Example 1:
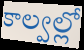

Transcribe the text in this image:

కాల్వల్లో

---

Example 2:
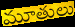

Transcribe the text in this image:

మూతులు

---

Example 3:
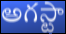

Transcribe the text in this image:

అగస్టా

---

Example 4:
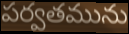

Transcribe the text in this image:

పర్వతమును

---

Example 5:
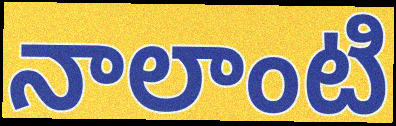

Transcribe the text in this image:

నాలాంటి